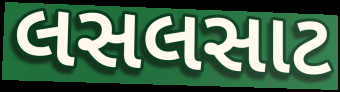
લસલસાટ